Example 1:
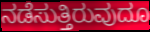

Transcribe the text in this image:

ನಡೆಸುತ್ತಿರುವುದೂ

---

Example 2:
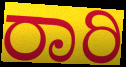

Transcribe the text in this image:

ರಾರಿ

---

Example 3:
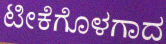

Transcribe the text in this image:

ಟೀಕೆಗೊಳಗಾದ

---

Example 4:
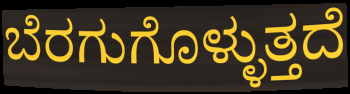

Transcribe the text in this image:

ಬೆರಗುಗೊಳ್ಳುತ್ತದೆ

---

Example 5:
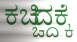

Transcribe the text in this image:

ಕಚ್ಚಿದ್ದಕ್ಕೆ